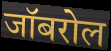
जॉबरोल